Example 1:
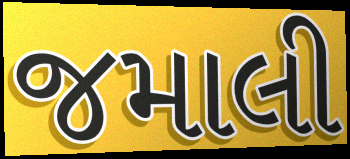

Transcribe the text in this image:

જમાલી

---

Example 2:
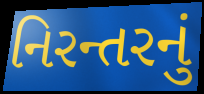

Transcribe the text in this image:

નિરન્તરનું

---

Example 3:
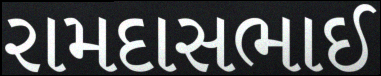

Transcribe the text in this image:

રામદાસભાઈ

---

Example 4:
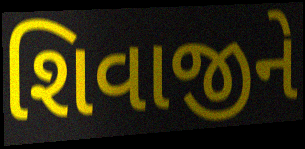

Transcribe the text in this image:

શિવાજીને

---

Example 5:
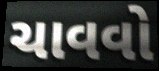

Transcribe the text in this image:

ચાવવો